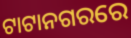
ଟାଟାନଗରରେ